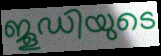
ജൂഡിയുടെ